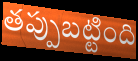
తప్పుబట్టింది